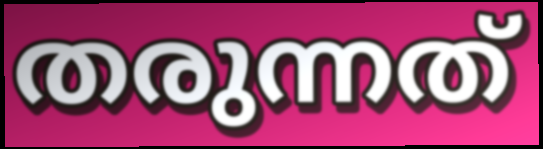
തരുന്നത്